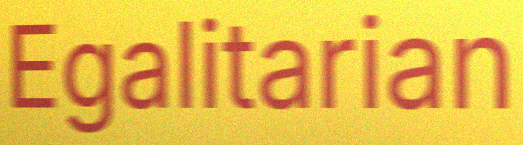
Egalitarian